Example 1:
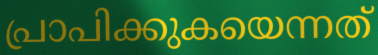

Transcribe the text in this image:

പ്രാപിക്കുകയെന്നത്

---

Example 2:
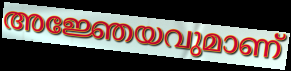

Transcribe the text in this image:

അജ്ഞേയവുമാണ്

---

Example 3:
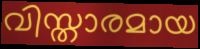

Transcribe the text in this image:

വിസ്താരമായ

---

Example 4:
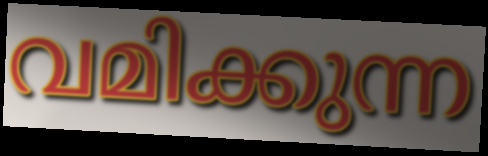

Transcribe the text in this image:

വമിക്കുന്ന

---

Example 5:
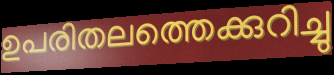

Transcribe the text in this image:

ഉപരിതലത്തെക്കുറിച്ചു